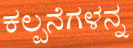
ಕಲ್ಪನೆಗಳನ್ನ